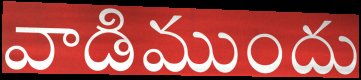
వాడిముందు